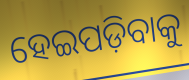
ହେଇପଡ଼ିବାକୁ